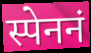
स्पेननं